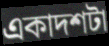
একাদশটা